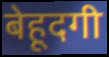
बेहूदगी